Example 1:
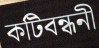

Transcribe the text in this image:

কটিবন্ধনী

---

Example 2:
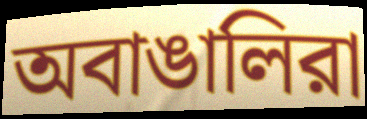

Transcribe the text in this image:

অবাঙালিরা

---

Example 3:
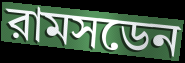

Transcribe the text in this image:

রামসডেন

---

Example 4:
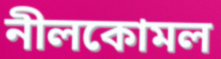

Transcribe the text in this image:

নীলকোমল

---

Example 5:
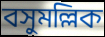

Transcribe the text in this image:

বসুমল্লিক